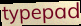
typepad